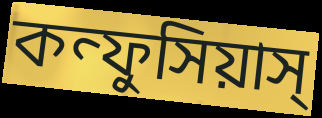
কন্ফুসিয়াস্